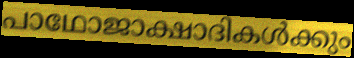
പാഥോജാക്ഷാദികൾക്കും